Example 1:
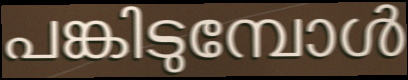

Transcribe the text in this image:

പങ്കിടുമ്പോൾ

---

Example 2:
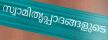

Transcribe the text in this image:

സ്വാമിതൃപ്പാദങ്ങളുടെ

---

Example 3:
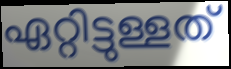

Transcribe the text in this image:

ഏറ്റിട്ടുള്ളത്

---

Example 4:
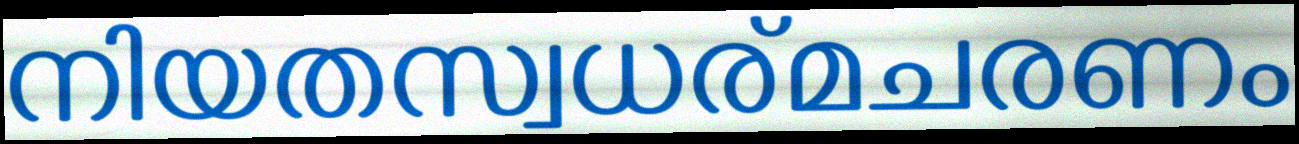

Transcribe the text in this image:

നിയതസ്വധര്മചരണം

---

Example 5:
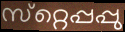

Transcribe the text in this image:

സ്‌റ്റെപ്പപ്പു